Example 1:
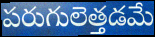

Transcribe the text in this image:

పరుగులెత్తడమే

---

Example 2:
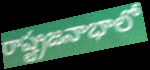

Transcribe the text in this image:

రాష్ట్రజనాభాలో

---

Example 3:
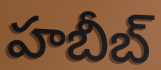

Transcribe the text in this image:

హబీబ్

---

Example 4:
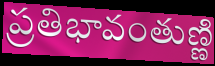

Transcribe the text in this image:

ప్రతిభావంతుణ్ణి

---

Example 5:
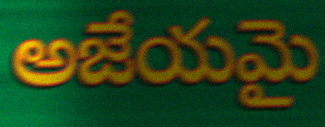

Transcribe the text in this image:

అజేయమై